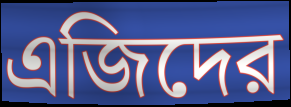
এজিদের